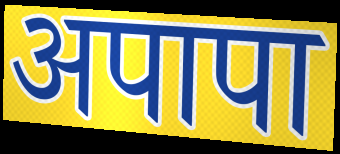
अपापा